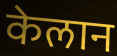
केलान